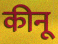
कीनू